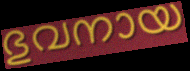
ഭുവനായ